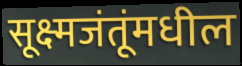
सूक्ष्मजंतूंमधील